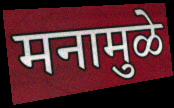
मनामुळे